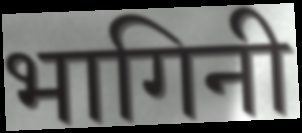
भागिनी